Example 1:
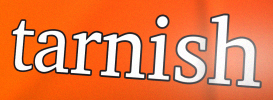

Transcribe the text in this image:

tarnish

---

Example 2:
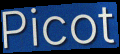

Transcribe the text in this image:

Picot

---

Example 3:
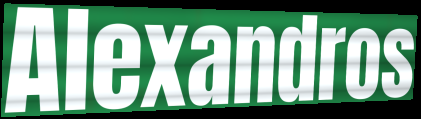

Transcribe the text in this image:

Alexandros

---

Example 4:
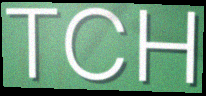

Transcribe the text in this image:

TCH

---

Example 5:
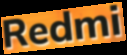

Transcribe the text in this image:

Redmi